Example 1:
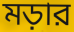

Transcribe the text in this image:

মড়ার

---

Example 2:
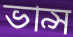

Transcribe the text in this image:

ভান্স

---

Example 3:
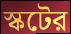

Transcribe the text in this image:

স্কটের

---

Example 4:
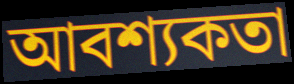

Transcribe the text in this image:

আবশ্যকতা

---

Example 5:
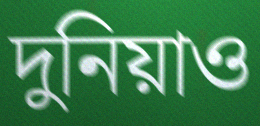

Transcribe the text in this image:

দুনিয়াও